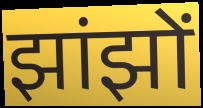
झांझों